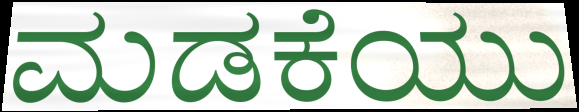
ಮಡಕೆಯು